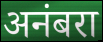
अनंबरा